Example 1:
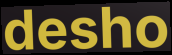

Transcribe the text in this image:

desho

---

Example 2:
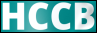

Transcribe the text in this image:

HCCB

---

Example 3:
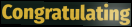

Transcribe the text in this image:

Congratulating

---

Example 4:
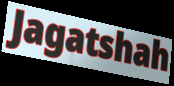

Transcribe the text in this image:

Jagatshah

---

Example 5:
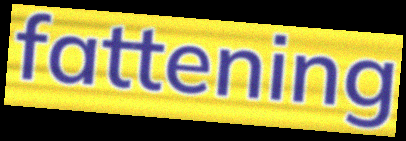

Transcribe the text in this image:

fattening